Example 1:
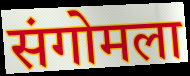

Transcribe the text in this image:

संगोमला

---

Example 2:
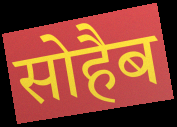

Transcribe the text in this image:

सोहैब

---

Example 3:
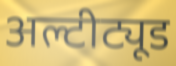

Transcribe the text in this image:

अल्टीट्यूड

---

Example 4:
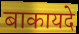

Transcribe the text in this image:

बाकायदे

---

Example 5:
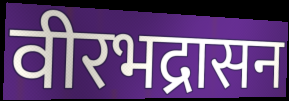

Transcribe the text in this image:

वीरभद्रासन